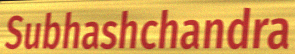
Subhashchandra